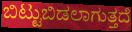
ಬಿಟ್ಟುಬಿಡಲಾಗುತ್ತದೆ